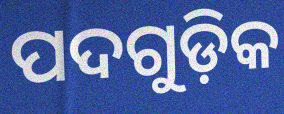
ପଦଗୁଡ଼ିକ